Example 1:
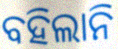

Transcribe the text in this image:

ବହିଲାନି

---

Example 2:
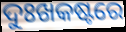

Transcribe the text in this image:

ଦୁଃଖକଷ୍ଟରେ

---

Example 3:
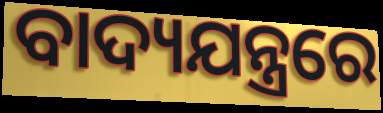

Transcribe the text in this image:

ବାଦ୍ୟଯନ୍ତ୍ରରେ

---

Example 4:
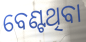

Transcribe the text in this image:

ବେଣ୍ଟଥିବା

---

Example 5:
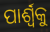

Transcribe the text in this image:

ପାର୍ଶ୍ଵକୁ